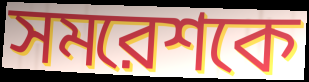
সমরেশকে